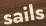
sails